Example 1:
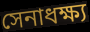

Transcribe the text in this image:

সেনাধক্ষ্য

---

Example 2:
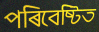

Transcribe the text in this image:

পৰিবেষ্টিত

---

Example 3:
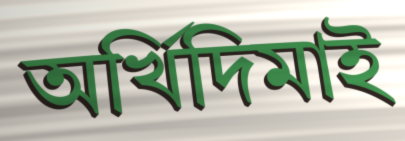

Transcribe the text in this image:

অৰ্খিদিমাই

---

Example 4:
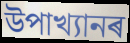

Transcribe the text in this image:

উপাখ্যানৰ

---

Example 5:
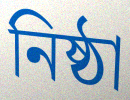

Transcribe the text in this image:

নিষ্ঠা